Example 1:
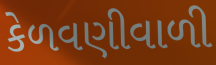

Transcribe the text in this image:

કેળવણીવાળી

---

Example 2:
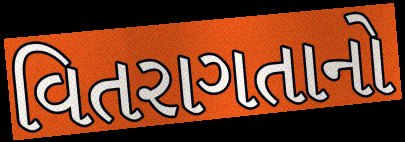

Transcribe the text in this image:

વિતરાગતાનો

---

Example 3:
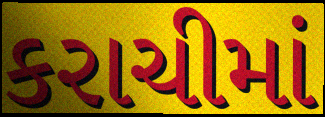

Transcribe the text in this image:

કરાચીમાં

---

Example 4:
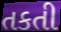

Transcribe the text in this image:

તકતી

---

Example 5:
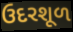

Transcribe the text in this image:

ઉદરશૂળ